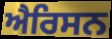
ਐਰਿਸਨ